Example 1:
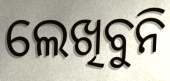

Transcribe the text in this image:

ଲେଖିବୁନି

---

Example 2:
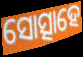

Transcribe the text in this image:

ସୋତ୍ସାହେ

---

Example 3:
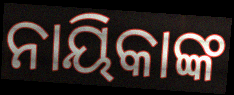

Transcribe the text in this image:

ନାୟିକାଙ୍କ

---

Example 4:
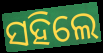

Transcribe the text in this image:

ସହିଲେ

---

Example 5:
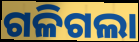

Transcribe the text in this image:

ଗଳିଗଲା